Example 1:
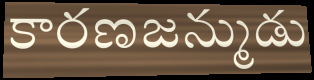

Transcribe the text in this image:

కారణజన్ముడు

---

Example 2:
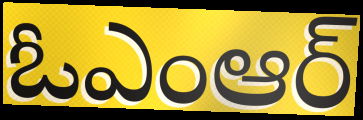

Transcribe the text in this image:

ఓఎంఆర్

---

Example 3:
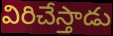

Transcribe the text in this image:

విరిచేస్తాడు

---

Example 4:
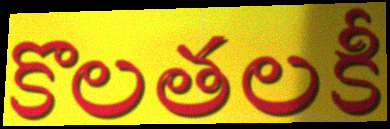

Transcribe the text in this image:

కొలతలకీ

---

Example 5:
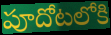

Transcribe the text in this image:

పూదోటలోకి